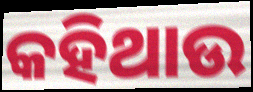
କହିଥାଉ